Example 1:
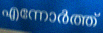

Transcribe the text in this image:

എന്നോർത്ത്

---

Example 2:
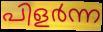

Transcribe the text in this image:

പിളർന്ന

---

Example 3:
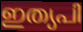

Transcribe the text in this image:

ഇത്യപി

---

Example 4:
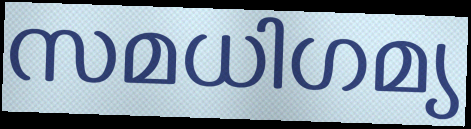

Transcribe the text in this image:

സമധിഗമ്യ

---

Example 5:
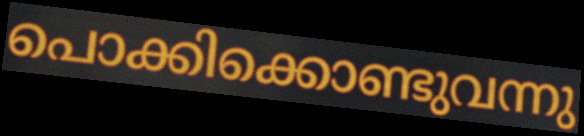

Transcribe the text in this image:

പൊക്കിക്കൊണ്ടുവന്നു